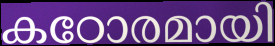
കഠോരമായി